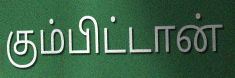
கும்பிட்டான்